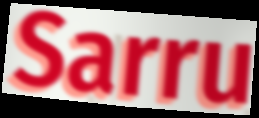
Sarru